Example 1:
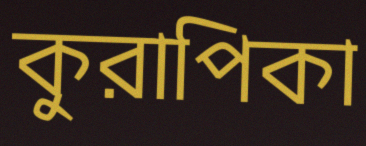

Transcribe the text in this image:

কুরাপিকা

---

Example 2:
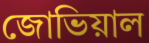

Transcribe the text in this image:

জোভিয়াল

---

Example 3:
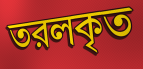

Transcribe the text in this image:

তরলকৃত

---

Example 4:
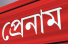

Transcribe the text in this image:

প্রেনাম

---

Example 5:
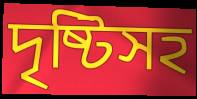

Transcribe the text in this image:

দৃষ্টিসহ